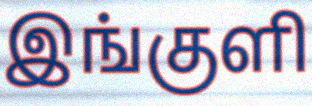
இங்குளி